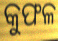
କୁଫଳ